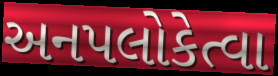
અનપલોકેત્વા